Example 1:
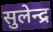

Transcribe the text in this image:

सुलेन्द्र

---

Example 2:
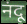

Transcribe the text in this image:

नंदू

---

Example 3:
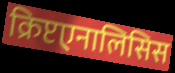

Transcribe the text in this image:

क्रिप्टएनालिसिस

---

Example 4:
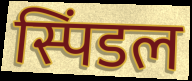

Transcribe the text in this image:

स्पिंडल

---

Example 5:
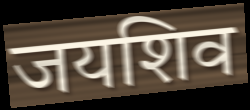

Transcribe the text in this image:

जयशिव